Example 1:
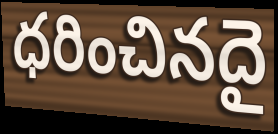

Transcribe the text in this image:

ధరించినదై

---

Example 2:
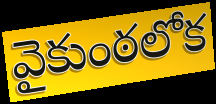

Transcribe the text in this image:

వైకుంఠలోక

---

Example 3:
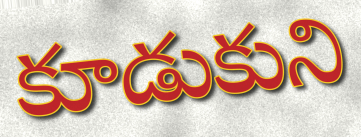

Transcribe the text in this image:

కూడుకుని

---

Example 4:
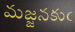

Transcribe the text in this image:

మజ్జనకుఁ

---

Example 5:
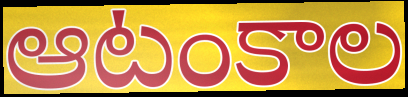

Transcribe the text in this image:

ఆటంకాల